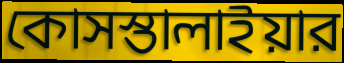
কোসস্তালাইয়ার